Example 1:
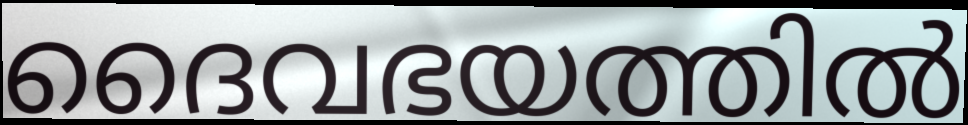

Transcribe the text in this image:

ദൈവഭയത്തിൽ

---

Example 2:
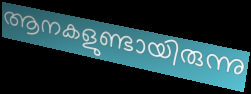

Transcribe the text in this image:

ആനകളുണ്ടായിരുന്നു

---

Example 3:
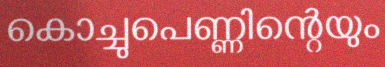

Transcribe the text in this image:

കൊച്ചുപെണ്ണിന്റെയും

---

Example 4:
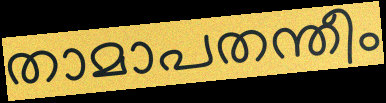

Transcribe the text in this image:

താമാപതന്തീം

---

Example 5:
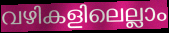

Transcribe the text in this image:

വഴികളിലെല്ലാം